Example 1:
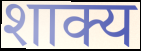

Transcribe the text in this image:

शाक्य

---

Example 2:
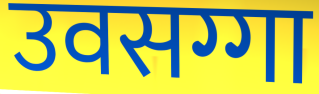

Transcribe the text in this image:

उवसग्गा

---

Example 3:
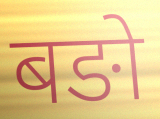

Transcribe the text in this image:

बङो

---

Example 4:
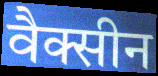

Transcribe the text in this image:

वैक्सीन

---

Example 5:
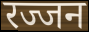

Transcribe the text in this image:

रज्जन